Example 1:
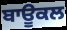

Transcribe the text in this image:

ਬਾਊਕਲ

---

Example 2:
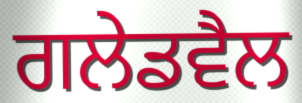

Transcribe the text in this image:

ਗਲੇਡਵੈਲ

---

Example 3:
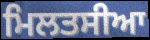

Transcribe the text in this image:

ਮਿਲਤਸੀਆ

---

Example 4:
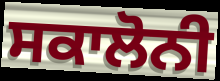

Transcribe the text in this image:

ਸਕਾਲੋਨੀ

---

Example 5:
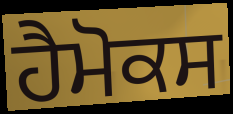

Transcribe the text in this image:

ਹੈਮੋਕਸ